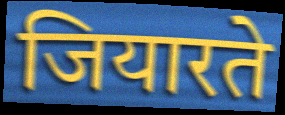
जियारते